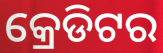
କ୍ରେଡିଟର